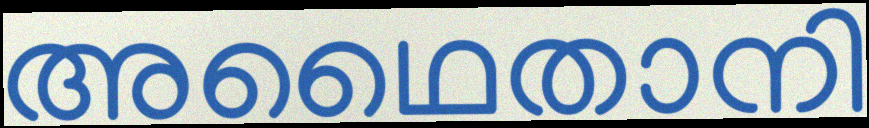
അഥൈതാനി